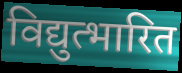
विद्युत्भारित